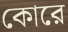
কোরে